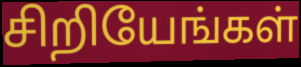
சிறியேங்கள்